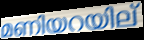
മണിയറയില്